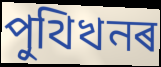
পুথিখনৰ